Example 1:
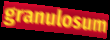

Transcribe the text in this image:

granulosum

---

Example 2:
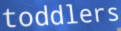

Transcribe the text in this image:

toddlers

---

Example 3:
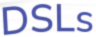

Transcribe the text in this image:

DSLs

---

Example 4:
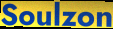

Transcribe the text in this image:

Soulzon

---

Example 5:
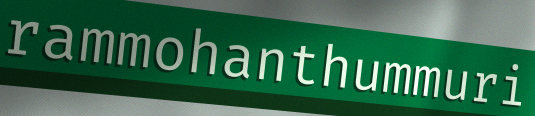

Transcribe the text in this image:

rammohanthummuri